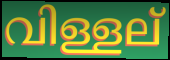
വിള്ളല്